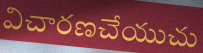
విచారణచేయుచు